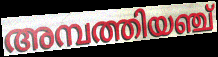
അമ്പത്തിയഞ്ച്